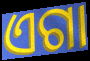
ଏଗା